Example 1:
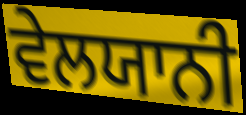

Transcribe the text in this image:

ਵੇਲਯਾਨੀ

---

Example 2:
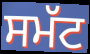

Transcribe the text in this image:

ਸਮੱਟ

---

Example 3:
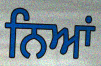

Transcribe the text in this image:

ਨਿਆਂ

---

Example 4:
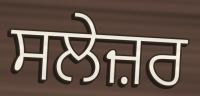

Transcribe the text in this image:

ਸਲੇਜ਼ਰ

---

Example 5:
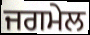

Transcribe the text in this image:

ਜਗਮੇਲ